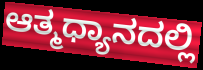
ಆತ್ಮಧ್ಯಾನದಲ್ಲಿ